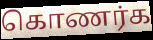
கொணர்க